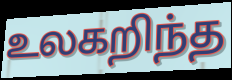
உலகறிந்த